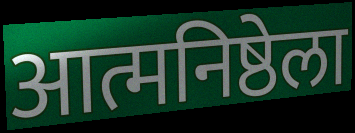
आत्मनिष्ठेला